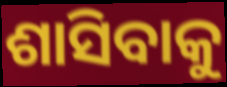
ଶାସିବାକୁ